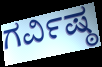
ಗರ್ವಿಷ್ಠ